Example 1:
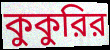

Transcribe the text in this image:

কুকুরির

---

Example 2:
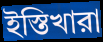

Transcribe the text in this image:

ইস্তিখারা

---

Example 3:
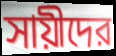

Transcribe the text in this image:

সায়ীদের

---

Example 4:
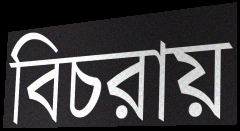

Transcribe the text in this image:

বিচরায়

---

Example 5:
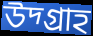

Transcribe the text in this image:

উদ্গ্রাহ